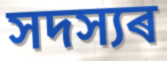
সদস্যৰ